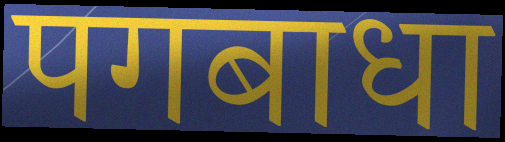
पगबाधा